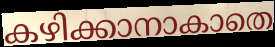
കഴിക്കാനാകാതെ